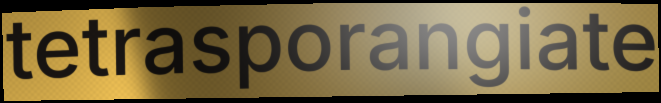
tetrasporangiate